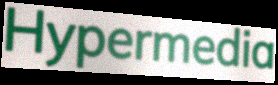
Hypermedia